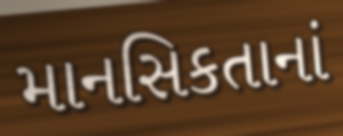
માનસિકતાનાં